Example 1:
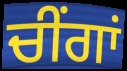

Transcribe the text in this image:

ਚੀਂਗਾਂ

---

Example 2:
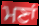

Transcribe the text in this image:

ਮਣਾਂ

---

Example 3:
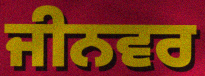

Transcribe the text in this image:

ਜੀਨਵਰ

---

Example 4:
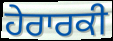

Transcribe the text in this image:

ਹੇਰਾਰਕੀ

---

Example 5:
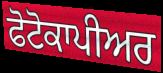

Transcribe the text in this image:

ਫੋਟੋਕਾਪੀਅਰ